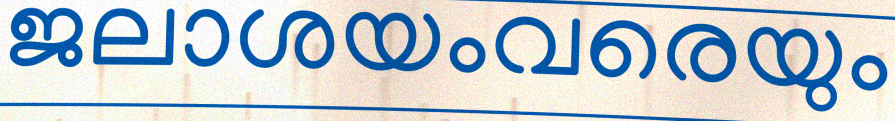
ജലാശയംവരെയും